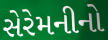
સેરેમનીનો